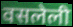
वसलेली